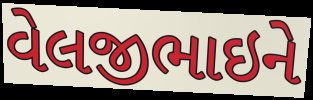
વેલજીભાઇને